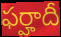
ఫర్హాదీ